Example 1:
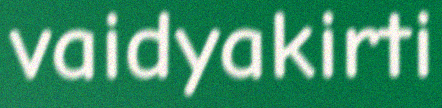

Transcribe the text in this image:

vaidyakirti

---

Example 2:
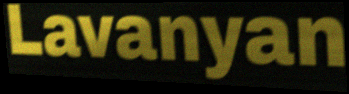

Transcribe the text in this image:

Lavanyan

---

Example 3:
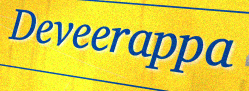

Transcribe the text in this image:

Deveerappa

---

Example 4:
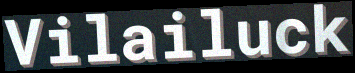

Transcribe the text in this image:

Vilailuck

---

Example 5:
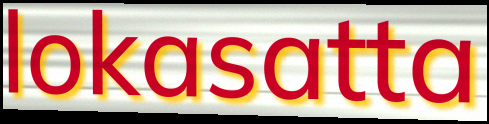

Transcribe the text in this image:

lokasatta